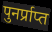
पुनर्प्राप्त